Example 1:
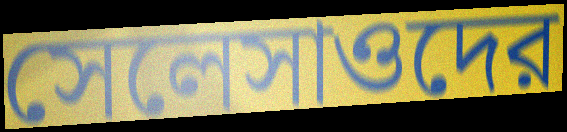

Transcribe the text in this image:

সেলেসাওদের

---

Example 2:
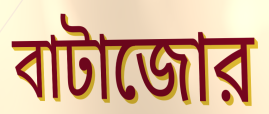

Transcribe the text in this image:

বাটাজোর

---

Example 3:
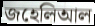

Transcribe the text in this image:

জহেলিআল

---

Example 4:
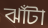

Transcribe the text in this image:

ঝাঁটা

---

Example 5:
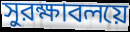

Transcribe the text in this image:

সুরক্ষাবলয়ে